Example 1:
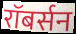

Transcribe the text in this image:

रॉबर्सन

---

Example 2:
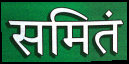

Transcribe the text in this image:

समितं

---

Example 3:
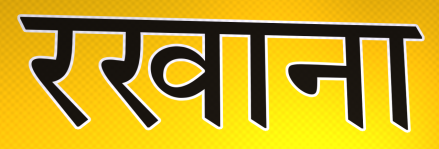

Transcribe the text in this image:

रखाना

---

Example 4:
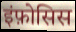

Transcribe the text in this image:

इंफ़ोसिस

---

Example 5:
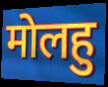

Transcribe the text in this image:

मोलहु